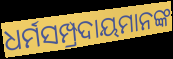
ଧର୍ମସମ୍ପ୍ରଦାୟମାନଙ୍କ